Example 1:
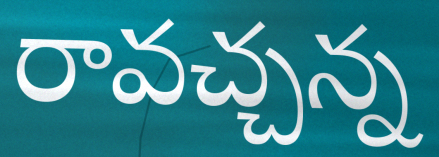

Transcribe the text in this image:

రావచ్చన్న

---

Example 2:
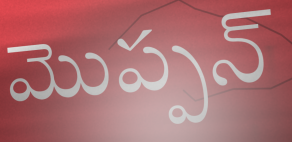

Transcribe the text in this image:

మొప్పన్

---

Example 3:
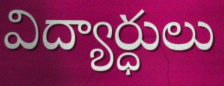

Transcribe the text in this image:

విద్యార్ధులు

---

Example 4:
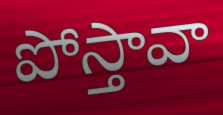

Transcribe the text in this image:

పోస్తావా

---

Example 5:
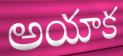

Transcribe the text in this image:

అయాక